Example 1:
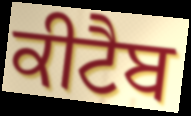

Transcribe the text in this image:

ਕੀਟੈਬ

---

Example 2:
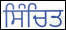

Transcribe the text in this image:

ਸਿੰਚਿਤ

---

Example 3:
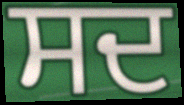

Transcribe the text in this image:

ਸਦ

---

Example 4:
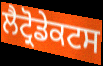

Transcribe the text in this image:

ਲੈਟ੍ਰੋਡੇਕਟਸ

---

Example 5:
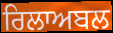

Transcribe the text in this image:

ਰਿਲਾਅਬਲ